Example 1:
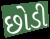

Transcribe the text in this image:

છોડી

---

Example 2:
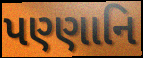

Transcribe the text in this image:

પણ્ણાનિ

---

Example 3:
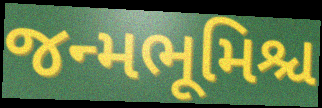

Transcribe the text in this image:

જન્મભૂમિશ્ચ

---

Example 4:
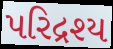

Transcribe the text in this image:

પરિદ્રશ્ય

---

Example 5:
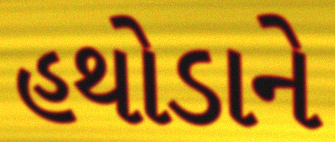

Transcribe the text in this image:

હથોડાને